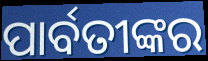
ପାର୍ବତୀଙ୍କର